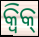
କ୍ୱିକ୍